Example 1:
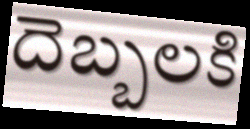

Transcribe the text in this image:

దెబ్బలకి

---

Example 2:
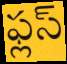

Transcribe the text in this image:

ఫ్లస్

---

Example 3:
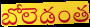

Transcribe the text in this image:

బోలెడంత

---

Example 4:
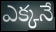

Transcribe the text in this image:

ఎక్కనే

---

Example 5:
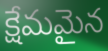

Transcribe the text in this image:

క్షేమమైన